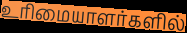
உரிமையாளர்களில்